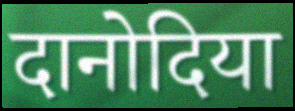
दानोदिया